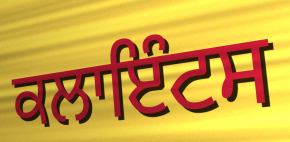
ਕਲਾਇੰਟਸ